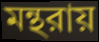
মন্থরায়